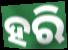
ହରି